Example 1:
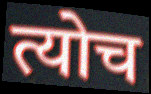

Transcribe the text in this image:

त्योच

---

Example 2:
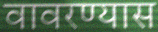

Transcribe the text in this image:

वावरण्यास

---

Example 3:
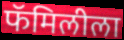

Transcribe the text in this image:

फॅमिलीला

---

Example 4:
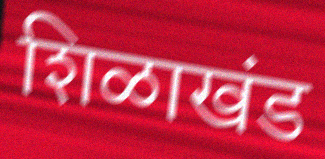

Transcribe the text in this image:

शिळाखंड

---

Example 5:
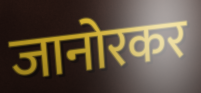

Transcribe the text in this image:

जानोरकर